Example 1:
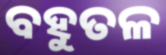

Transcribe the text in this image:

ବହୁତଳ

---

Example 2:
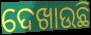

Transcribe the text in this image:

ଦେଖାଉଛି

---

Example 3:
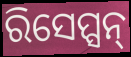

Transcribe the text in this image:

ରିସେପ୍ସନ୍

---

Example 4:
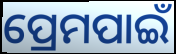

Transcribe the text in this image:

ପ୍ରେମପାଇଁ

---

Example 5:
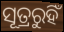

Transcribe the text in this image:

ସୂତ୍ରରୁହିଁ